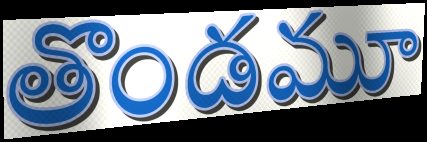
తొండమూ